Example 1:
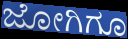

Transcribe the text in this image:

ಜೋಗಿಗೂ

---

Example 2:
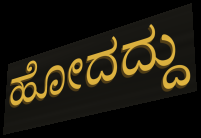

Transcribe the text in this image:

ಹೋದದ್ದು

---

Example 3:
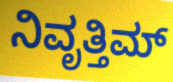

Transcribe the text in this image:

ನಿವೃತ್ತಿಮ್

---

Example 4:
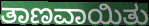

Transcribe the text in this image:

ತಾಣವಾಯಿತು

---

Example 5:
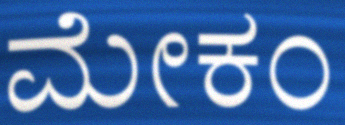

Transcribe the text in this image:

ಮೇಕಂ